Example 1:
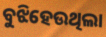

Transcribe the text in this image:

ବୁଝିହେଉଥିଲା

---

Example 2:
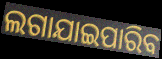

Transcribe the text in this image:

ଲଗାଯାଇପାରିବ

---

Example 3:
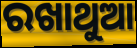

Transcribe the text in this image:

ରଖାଥୁଆ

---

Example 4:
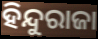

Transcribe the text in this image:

ହିନ୍ଦୁରାଜା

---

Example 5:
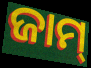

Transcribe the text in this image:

ଜାମ୍